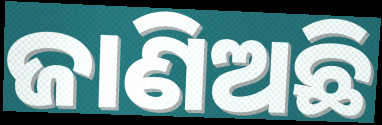
ଜାଣିଅଛି